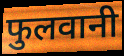
फुलवानी